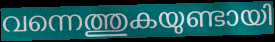
വന്നെത്തുകയുണ്ടായി